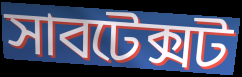
সাবটেক্সট